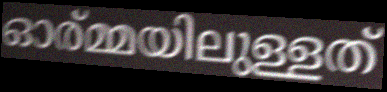
ഓര്മ്മയിലുള്ളത്